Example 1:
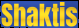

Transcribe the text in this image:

Shaktis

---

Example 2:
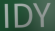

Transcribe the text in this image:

IDY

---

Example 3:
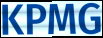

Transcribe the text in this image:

KPMG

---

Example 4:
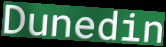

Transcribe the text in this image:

Dunedin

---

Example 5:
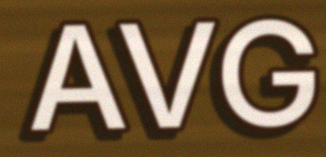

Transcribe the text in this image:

AVG